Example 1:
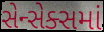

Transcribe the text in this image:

સેન્સેક્સમાં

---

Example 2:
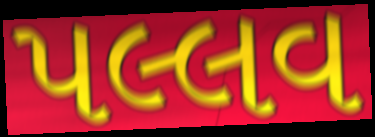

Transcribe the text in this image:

પલ્લવ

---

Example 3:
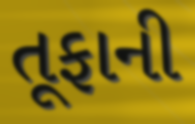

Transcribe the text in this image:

તૂફાની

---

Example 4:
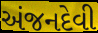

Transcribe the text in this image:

અંજનદેવી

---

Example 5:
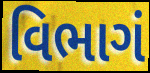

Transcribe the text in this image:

વિભાગં